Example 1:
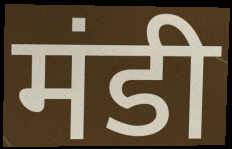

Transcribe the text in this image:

मंडी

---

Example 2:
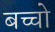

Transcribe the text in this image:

बच्चो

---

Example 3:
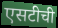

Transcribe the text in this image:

एसटीची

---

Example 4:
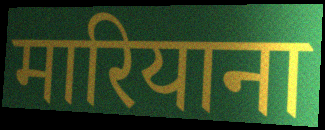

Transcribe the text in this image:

मारियाना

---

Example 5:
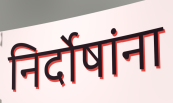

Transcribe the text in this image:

निर्दोषांना